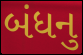
બંધનુ